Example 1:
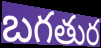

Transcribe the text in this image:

బగతుర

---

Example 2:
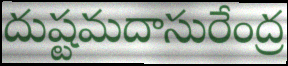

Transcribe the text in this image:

దుష్టమదాసురేంద్ర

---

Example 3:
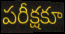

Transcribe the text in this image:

పరీక్షకూ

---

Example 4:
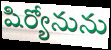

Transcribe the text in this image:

షిర్యోనును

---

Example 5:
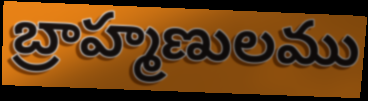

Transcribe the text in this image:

బ్రాహ్మణులము